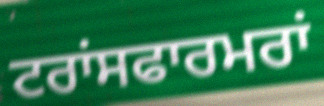
ਟਰਾਂਸਫਾਰਮਰਾਂ